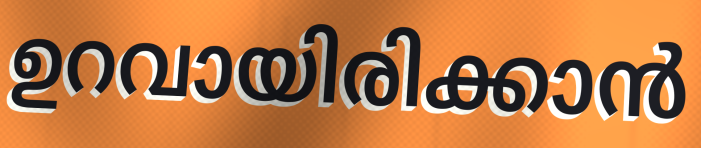
ഉറവായിരിക്കാൻ